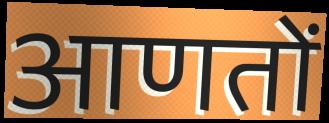
आणतों